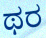
ಥರ